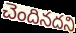
చెందినదని